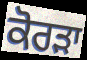
ਕੋਰੜਾ